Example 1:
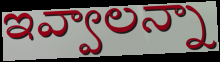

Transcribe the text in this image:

ఇవ్వాలన్నా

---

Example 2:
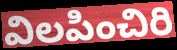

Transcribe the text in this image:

విలపించిరి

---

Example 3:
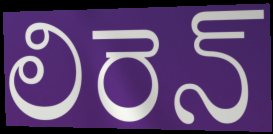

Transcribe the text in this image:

లిరెన్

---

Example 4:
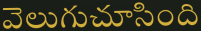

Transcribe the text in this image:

వెలుగుచూసింది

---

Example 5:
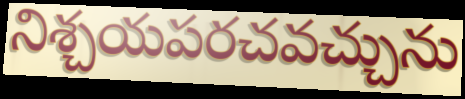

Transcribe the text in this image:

నిశ్చయపరచవచ్చును